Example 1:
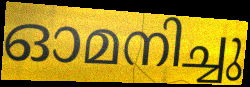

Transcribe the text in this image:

ഓമനിച്ചു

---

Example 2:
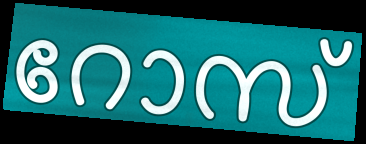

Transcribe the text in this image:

റോസ്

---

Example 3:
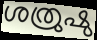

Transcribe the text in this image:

ശത്രുഷു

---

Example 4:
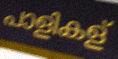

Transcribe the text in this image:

പാളികള്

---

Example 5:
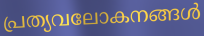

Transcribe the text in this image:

പ്രത്യവലോകനങ്ങൾ